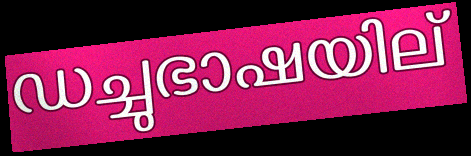
ഡച്ചുഭാഷയില്